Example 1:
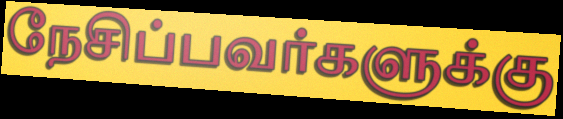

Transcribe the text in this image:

நேசிப்பவர்களுக்கு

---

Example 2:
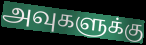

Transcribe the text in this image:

அவுகளுக்கு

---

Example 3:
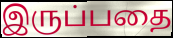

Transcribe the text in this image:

இருப்பதை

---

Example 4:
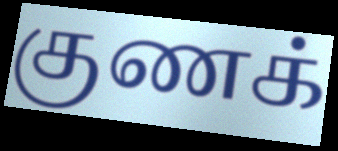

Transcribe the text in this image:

குணக்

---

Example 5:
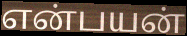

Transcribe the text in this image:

என்பயன்